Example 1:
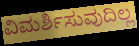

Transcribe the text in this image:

ವಿಮರ್ಶಿಸುವುದಿಲ್ಲ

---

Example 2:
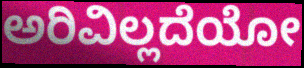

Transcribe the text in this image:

ಅರಿವಿಲ್ಲದೆಯೋ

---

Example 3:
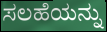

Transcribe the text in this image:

ಸಲಹೆಯನ್ನು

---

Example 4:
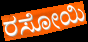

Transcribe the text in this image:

ರಸೋಯಿ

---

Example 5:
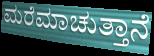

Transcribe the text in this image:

ಮರೆಮಾಚುತ್ತಾನೆ